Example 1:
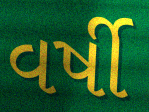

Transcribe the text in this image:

વર્ષી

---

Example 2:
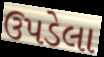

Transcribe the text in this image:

ઉપડેલા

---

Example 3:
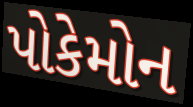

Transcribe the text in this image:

પોકેમોન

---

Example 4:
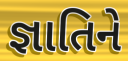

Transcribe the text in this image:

જ્ઞાતિને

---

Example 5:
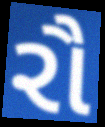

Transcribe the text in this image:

રૌ